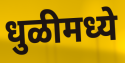
धुळीमध्ये